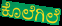
ಕೊಲೆಗಿಲೆ